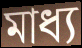
মাধ্য